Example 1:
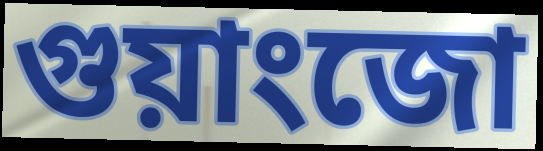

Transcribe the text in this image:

গুয়াংজো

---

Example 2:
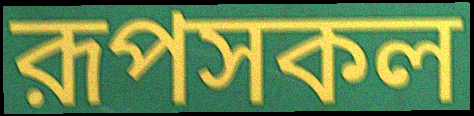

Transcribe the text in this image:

রূপসকল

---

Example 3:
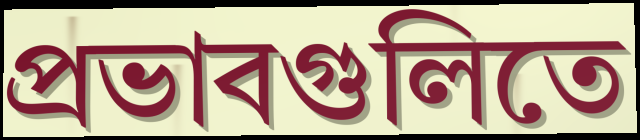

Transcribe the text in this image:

প্রভাবগুলিতে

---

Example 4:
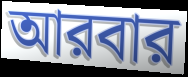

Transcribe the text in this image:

আরবার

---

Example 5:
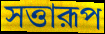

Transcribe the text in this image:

সত্তারূপ